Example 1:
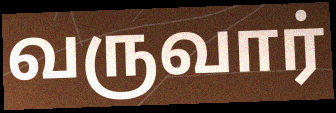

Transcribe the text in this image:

வருவார்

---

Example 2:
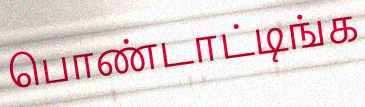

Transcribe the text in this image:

பொண்டாட்டிங்க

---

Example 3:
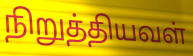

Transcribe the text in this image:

நிறுத்தியவள்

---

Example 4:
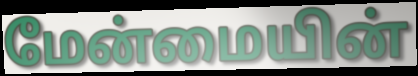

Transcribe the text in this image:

மேன்மையின்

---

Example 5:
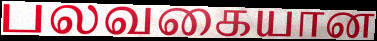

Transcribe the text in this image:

பலவகையான